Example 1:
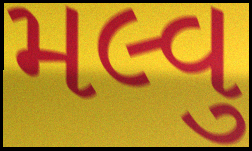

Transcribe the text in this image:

મલ્વુ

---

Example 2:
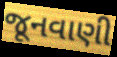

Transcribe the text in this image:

જૂનવાણી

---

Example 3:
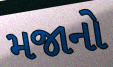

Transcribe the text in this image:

મજાનો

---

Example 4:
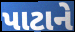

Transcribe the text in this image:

પાટાને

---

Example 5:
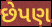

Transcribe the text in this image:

છેપણ